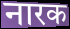
नारक